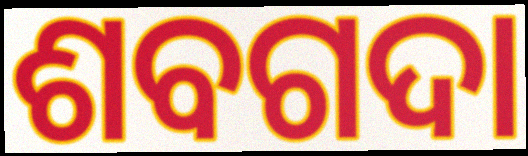
ଶବଗଦା